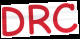
DRC